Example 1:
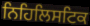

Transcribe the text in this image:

ਨਿਹਿਲਿਸਟਿਕ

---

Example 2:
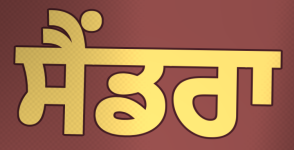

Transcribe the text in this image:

ਸੈਂਡਰਾ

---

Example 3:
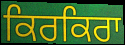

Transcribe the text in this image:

ਕਿਰਕਿਰਾ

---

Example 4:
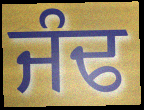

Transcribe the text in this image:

ਜੰਢ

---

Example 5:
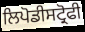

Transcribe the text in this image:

ਲਿਪੋਡੀਸਟ੍ਰੋਫੀ